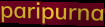
paripurna